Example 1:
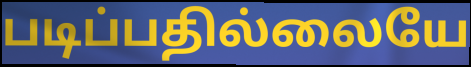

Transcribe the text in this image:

படிப்பதில்லையே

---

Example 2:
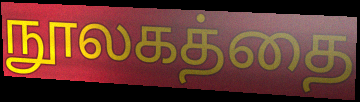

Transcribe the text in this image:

நூலகத்தை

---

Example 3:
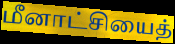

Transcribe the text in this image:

மீனாட்சியைத்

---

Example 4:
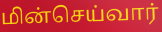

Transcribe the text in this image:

மின்செய்வார்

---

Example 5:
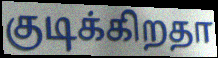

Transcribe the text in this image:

குடிக்கிறதா